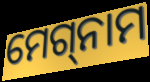
ମେଗ୍‌ନାମ